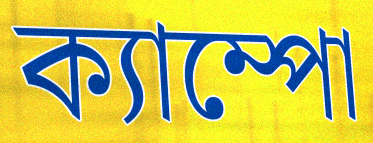
ক্যাম্পো